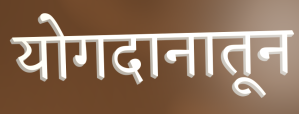
योगदानातून